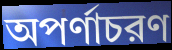
অপর্ণাচরণ